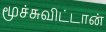
மூச்சுவிட்டான்